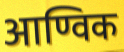
आण्विक